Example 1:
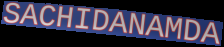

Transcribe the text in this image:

SACHIDANAMDA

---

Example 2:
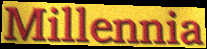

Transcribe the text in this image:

Millennia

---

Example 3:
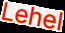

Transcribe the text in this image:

Lehel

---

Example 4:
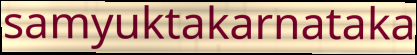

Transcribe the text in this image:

samyuktakarnataka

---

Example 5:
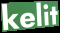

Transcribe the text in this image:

kelit